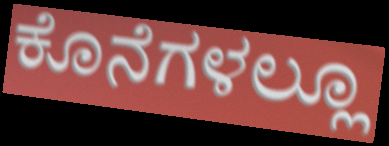
ಕೊನೆಗಳಲ್ಲೂ